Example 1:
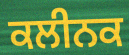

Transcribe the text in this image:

ਕਲੀਨਕ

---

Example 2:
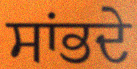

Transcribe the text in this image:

ਸਾਂਭਦੇ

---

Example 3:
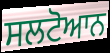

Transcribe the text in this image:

ਸਲਟੋਆਨ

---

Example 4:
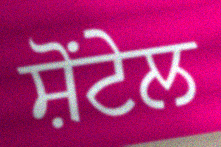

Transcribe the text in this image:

ਸ਼ੋਂਟੇਲ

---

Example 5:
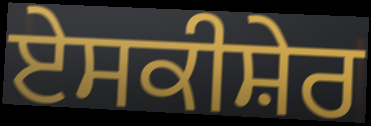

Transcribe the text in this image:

ਏਸਕੀਸ਼ੇਰ